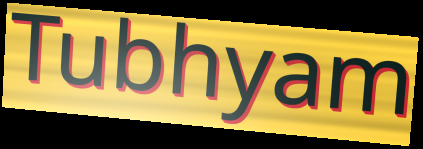
Tubhyam